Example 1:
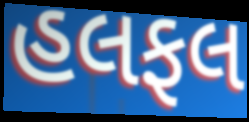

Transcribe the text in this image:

હલફલ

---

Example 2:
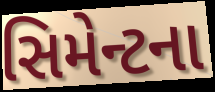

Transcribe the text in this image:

સિમેન્ટના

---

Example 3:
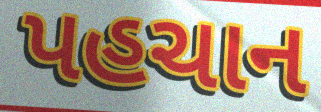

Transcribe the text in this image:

પહચાન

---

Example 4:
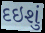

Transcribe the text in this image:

દઇશું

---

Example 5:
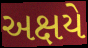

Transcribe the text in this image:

અક્ષયે